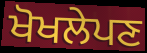
ਖੋਖਲੇਪਣ